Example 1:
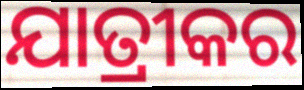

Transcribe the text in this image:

ଯାତ୍ରୀକର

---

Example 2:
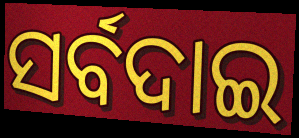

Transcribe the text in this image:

ସର୍ବଦାଇ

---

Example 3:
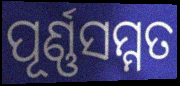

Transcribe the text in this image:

ପୂର୍ଣ୍ଣସମ୍ମତ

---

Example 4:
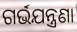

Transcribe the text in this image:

ଗର୍ଭଯନ୍ତ୍ରଣା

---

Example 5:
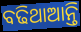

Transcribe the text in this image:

ବଢିଥାଆନ୍ତି